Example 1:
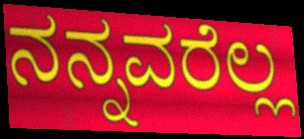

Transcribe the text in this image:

ನನ್ನವರೆಲ್ಲ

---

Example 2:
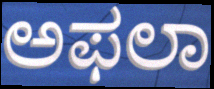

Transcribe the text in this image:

ಅಫಲಾ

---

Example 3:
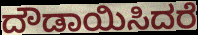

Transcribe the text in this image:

ದೌಡಾಯಿಸಿದರೆ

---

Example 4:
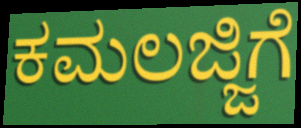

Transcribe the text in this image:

ಕಮಲಜ್ಜಿಗೆ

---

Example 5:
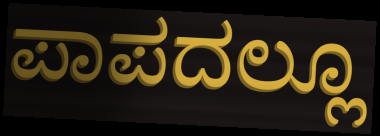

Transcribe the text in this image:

ಪಾಪದಲ್ಲೂ